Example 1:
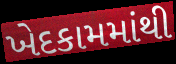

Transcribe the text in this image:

ખેદકામમાંથી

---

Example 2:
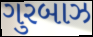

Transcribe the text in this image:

ગુરબાઝ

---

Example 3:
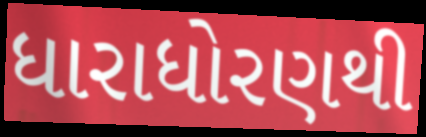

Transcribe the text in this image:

ધારાધોરણથી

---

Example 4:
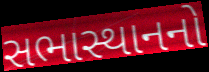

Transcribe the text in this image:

સભાસ્થાનનો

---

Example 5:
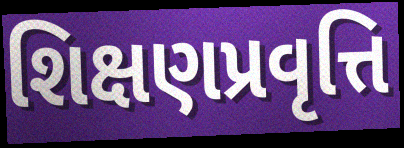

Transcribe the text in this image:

શિક્ષણપ્રવૃત્તિ